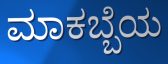
ಮಾಕಬ್ಬೆಯ